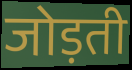
जोड़ती